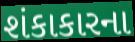
શંકાકારના